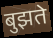
बुझते